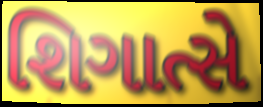
શિગાત્સે